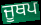
ਜੂਥਪ